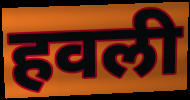
हवली